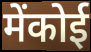
मेंकोई